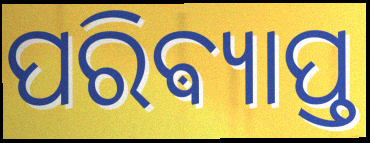
ପରିଵ୍ୟାପ୍ତ